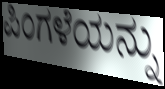
ಪಿಂಗಳೆಯನ್ನು